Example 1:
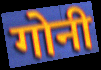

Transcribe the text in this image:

गोनी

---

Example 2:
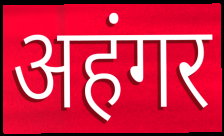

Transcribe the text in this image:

अहंगर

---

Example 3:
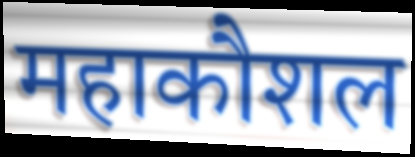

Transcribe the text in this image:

महाकौशल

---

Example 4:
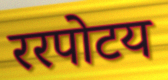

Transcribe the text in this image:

ररपोटय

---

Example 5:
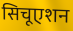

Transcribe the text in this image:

सिचूएशन